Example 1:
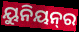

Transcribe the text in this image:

ୟୁନିୟନ୍‌ର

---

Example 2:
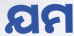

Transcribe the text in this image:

ଯମ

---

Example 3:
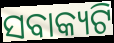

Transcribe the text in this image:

ସବାକ୍ୟଟି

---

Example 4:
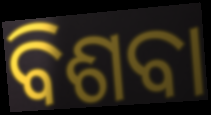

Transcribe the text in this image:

ବିଶବା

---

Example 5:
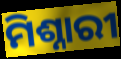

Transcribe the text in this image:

ମିଶ୍ନାରୀ